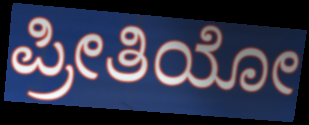
ಪ್ರೀತಿಯೋ